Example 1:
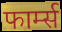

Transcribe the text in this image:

फार्म्स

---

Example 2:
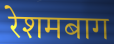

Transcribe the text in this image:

रेशमबाग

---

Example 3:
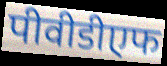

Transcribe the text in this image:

पीवीडीएफ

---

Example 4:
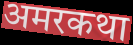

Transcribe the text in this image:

अमरकथा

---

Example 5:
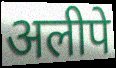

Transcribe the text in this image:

अलीपे